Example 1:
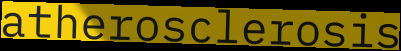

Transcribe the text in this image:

atherosclerosis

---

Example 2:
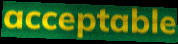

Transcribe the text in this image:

acceptable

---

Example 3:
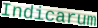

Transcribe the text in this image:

Indicarum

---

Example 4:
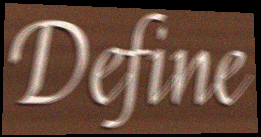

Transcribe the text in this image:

Define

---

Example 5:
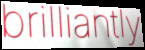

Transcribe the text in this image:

brilliantly